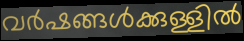
വർഷങ്ങൾക്കുള്ളിൽ